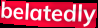
belatedly